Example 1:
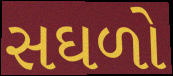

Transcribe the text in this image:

સઘળો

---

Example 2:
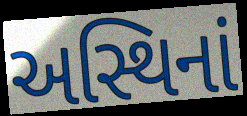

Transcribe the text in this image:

અસ્થિનાં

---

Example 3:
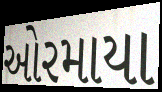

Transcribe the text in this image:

ઓરમાયા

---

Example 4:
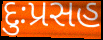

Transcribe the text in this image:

દુઃપ્રસહ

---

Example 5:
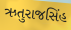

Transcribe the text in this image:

ઋતુરાજસિંહ